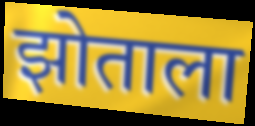
झोताला